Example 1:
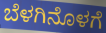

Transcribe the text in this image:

ಬೆಳಗಿನೊಳಗೆ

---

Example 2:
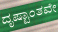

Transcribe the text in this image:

ದೃಷ್ಟಾಂತವೇ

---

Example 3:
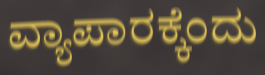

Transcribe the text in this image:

ವ್ಯಾಪಾರಕ್ಕೆಂದು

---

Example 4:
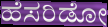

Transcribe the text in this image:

ಹೆಸರಿಡೋ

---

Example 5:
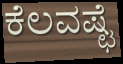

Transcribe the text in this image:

ಕೆಲವಷ್ಟೆ